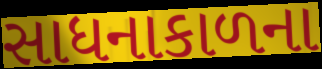
સાધનાકાળના